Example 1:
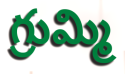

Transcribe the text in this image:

గ్రుమ్మి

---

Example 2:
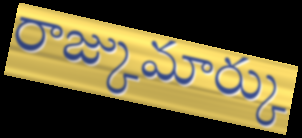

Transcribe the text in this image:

రాజ్కుమార్కు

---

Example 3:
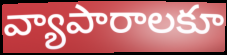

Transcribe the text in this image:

వ్యాపారాలకూ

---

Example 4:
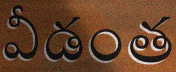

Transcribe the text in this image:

వీడంత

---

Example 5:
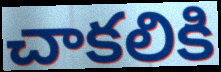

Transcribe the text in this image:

చాకలికి